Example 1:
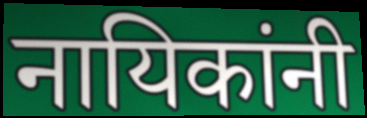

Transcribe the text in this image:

नायिकांनी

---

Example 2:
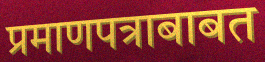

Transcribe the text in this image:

प्रमाणपत्राबाबत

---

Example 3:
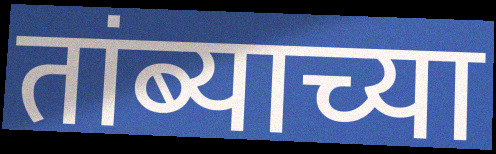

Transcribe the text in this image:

तांब्याच्या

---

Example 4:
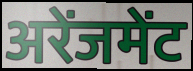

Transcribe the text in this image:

अरेंजमेंट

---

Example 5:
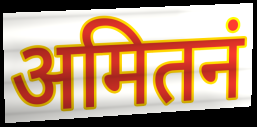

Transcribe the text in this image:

अमितनं